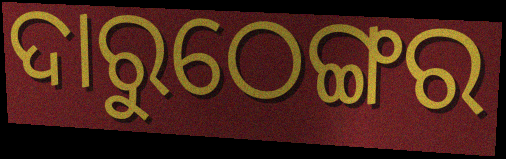
ଦାରୁଠେଙ୍ଗର